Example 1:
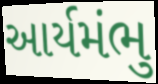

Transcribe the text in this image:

આર્યમંભુ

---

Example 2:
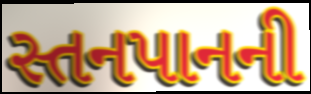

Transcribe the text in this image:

સ્તનપાનની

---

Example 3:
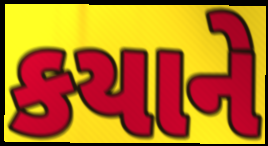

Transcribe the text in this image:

કયાને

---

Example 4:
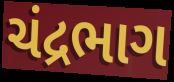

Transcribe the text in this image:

ચંદ્રભાગ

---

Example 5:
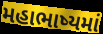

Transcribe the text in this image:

મહાભાષ્યમાં